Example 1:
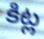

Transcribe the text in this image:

కిట్ల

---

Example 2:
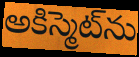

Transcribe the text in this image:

అకిస్మెట్‌ను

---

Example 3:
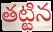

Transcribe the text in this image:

తట్టిన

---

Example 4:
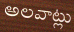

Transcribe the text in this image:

అలవాట్లు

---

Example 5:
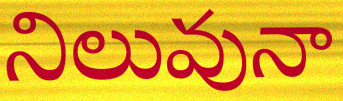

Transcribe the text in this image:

నిలువునా